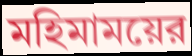
মহিমাময়ের